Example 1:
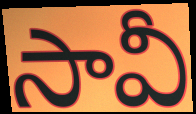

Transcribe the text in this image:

సావీ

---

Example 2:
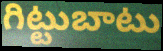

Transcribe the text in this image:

గిట్టుబాటు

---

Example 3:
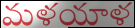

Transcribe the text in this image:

మళయాళ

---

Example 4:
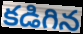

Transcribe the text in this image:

కడిగిన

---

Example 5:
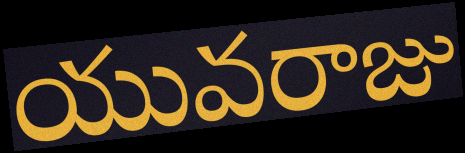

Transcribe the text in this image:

యువరాజు